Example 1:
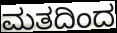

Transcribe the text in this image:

ಮತದಿಂದ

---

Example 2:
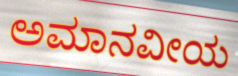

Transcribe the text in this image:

ಅಮಾನವೀಯ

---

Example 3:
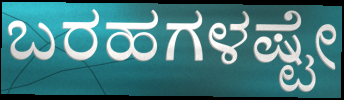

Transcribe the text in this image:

ಬರಹಗಳಷ್ಟೇ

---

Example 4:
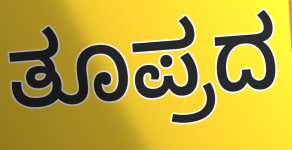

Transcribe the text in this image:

ತೂಪ್ರದ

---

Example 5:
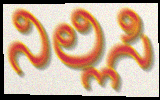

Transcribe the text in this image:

ನಿಲ್ಲಿಸಿ